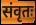
संवृतः